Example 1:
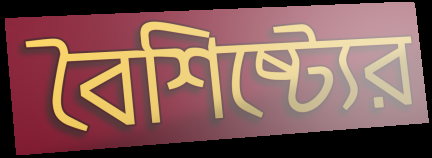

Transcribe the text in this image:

বৈশিষ্ট্যের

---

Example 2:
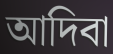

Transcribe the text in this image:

আদিবা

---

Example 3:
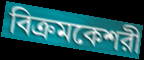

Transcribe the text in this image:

বিক্রমকেশরী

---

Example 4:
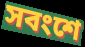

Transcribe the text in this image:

সবংশে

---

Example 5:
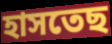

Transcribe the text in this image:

হাসতেছ